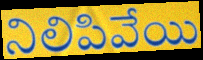
నిలిపివేయి